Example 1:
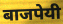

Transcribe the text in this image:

बाजपेयी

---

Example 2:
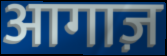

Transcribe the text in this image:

आगाज़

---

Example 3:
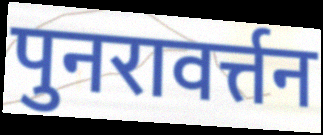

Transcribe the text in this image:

पुनरावर्त्तन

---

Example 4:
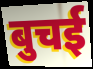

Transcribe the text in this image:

बुचई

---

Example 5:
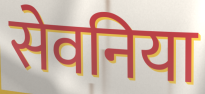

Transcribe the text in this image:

सेवनिया